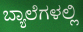
ಬ್ಯಾಲೆಗಳಲ್ಲಿ